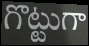
గొట్టుగా